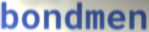
bondmen